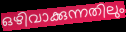
ഒഴിവാക്കുന്നതിലും